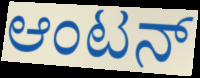
ಆಂಟನ್